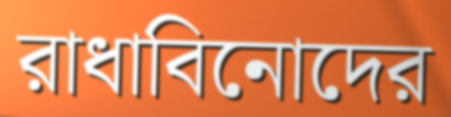
রাধাবিনোদের